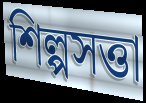
শিল্পসত্তা